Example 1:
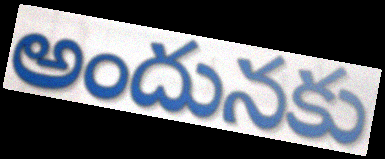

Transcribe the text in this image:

అందునకు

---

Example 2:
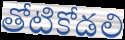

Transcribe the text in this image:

తోటికోడలి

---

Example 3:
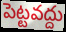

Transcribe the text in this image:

పెట్టవద్దు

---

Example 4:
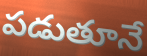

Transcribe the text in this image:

పడుతూనే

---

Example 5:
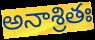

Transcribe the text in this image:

అనాశ్రితః